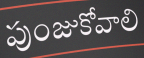
పుంజుకోవాలి